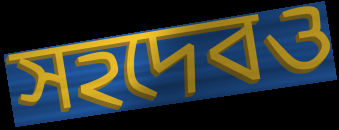
সহদেবও